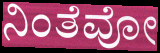
ನಿಂತೆವೋ